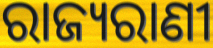
ରାଜ୍ୟରାଣୀ